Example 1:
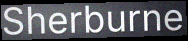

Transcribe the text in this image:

Sherburne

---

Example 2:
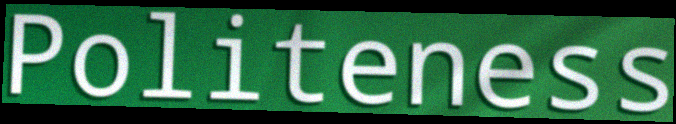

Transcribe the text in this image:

Politeness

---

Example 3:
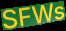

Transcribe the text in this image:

SFWs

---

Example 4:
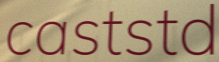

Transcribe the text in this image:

caststd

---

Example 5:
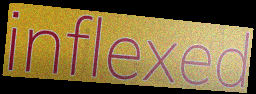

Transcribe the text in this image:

inflexed